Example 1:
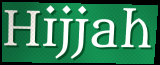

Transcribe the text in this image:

Hijjah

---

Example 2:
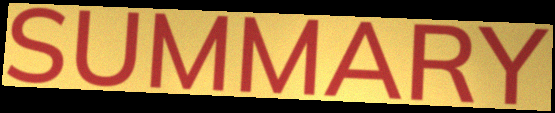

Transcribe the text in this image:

SUMMARY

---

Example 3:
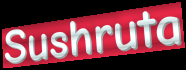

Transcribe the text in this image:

Sushruta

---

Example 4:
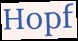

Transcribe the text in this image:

Hopf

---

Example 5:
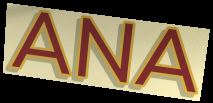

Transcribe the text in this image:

ANA